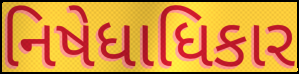
નિષેધાધિકાર